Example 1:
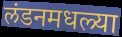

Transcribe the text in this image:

लंडनमधल्या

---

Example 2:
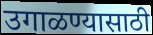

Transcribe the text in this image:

उगाळण्यासाठी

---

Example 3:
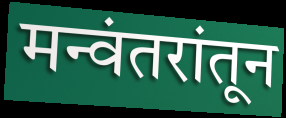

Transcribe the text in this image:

मन्वंतरांतून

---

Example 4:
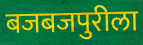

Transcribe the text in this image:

बजबजपुरीला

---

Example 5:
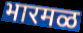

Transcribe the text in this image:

भारमळ